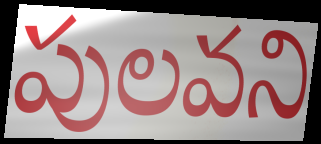
పులవని